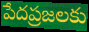
పేదప్రజలకు